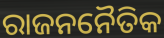
ରାଜନନୈତିକ